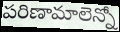
పరిణామాలెన్నో